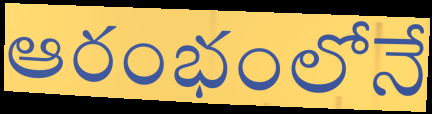
ఆరంభంలోనే